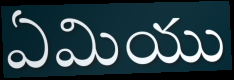
ఏమియు